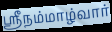
ஸ்ரீநம்மாழ்வார்